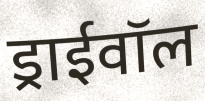
ड्राईवॉल